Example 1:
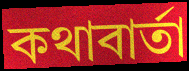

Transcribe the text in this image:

কথাবাৰ্তা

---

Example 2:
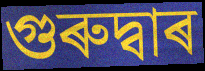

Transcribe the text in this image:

গুৰুদ্বাৰ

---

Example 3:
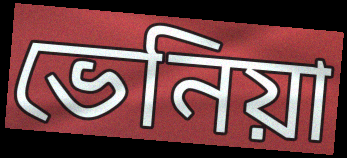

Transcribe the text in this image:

ভেনিয়া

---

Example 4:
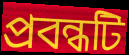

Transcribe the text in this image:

প্ৰবন্ধটি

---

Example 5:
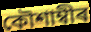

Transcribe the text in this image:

কৌশাম্বীৰ